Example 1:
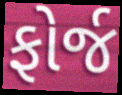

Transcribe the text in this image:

ફોર્જ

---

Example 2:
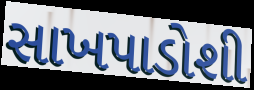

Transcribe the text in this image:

સાખપાડોશી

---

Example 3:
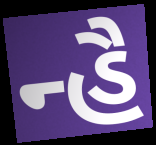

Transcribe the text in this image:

ન્હૈ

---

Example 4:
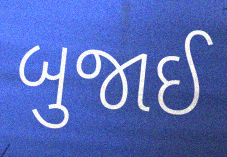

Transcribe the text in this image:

બુજાઈ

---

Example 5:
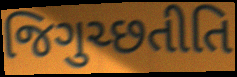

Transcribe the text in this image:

જિગુચ્છતીતિ